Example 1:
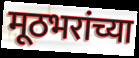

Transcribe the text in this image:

मूठभरांच्या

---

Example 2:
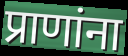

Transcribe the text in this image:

प्राणांना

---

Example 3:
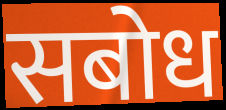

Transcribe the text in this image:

सबोध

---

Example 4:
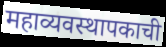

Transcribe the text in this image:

महाव्यवस्थापकाची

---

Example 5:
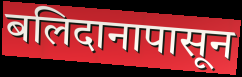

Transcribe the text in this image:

बलिदानापासून